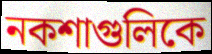
নকশাগুলিকে